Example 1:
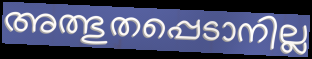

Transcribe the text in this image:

അത്ഭുതപ്പെടാനില്ല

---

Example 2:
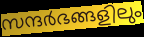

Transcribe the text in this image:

സന്ദർഭങ്ങളിലും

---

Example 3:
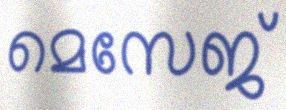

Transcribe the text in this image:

മെസേജ്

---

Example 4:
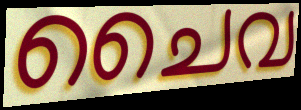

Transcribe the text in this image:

ചൈവ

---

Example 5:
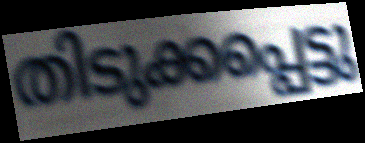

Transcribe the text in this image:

തിടുക്കപ്പെട്ടു